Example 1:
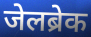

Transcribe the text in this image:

जेलब्रेक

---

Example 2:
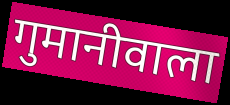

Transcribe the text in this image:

गुमानीवाला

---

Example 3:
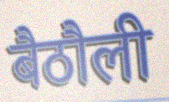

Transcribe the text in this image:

बैठौली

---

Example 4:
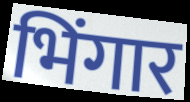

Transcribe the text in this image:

भिंगार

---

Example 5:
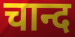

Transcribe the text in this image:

चान्द